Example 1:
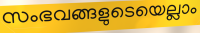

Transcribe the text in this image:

സംഭവങ്ങളുടെയെല്ലാം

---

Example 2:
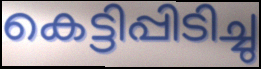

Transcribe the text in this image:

കെട്ടിപ്പിടിച്ചു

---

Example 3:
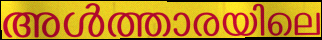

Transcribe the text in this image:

അൾത്താരയിലെ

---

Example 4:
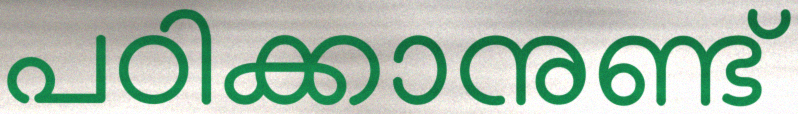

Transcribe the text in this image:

പഠിക്കാനുണ്ട്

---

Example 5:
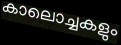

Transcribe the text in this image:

കാലൊച്ചകളും